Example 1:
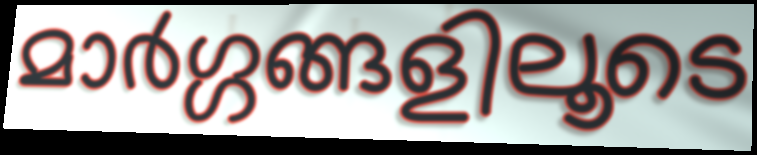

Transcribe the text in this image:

മാർഗ്ഗങ്ങളിലൂടെ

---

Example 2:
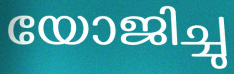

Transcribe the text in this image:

യോജിച്ചു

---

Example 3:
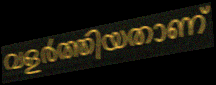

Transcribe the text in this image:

വളർത്തിയതാണ്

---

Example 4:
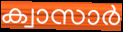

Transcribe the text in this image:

ക്വാസാർ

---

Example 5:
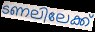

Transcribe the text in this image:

ടണലിലേക്ക്